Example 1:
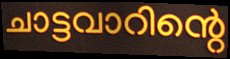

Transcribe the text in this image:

ചാട്ടവാറിന്റെ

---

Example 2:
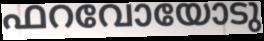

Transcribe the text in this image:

ഫറവോയോടു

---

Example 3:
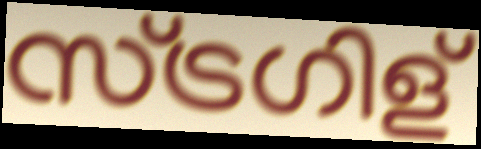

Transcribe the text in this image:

സ്ട്രഗിള്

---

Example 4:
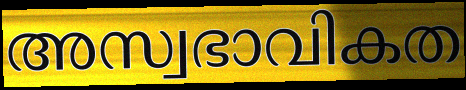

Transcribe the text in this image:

അസ്വഭാവികത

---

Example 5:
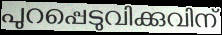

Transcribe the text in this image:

പുറപ്പെടുവിക്കുവിന്